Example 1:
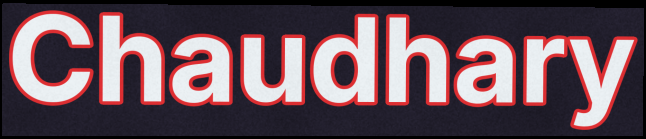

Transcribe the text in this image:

Chaudhary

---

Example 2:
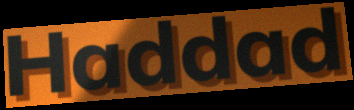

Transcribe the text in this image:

Haddad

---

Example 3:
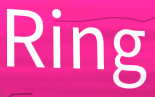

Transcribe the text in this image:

Ring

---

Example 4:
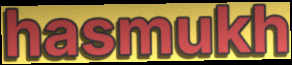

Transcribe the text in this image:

hasmukh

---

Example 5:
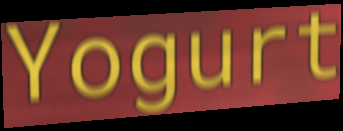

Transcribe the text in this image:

Yogurt